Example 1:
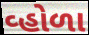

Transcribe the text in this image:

વ્હોળા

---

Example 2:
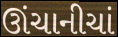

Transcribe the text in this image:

ઊંચાનીચાં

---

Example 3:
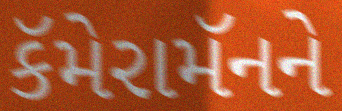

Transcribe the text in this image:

કૅમેરામૅનને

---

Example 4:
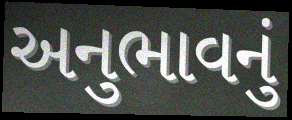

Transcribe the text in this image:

અનુભાવનું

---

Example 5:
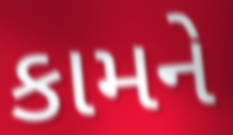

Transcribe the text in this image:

કામને